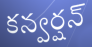
కన్వర్షన్